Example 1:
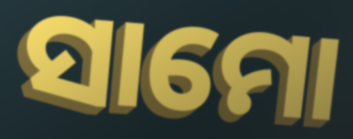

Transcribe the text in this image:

ସାମୋ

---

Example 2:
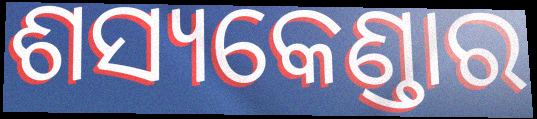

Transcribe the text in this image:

ଶସ୍ୟକେଣ୍ଡାର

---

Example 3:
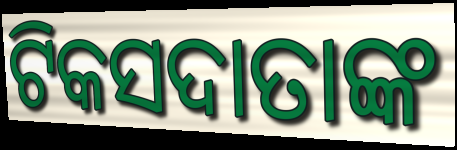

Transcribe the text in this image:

ଟିକସଦାତାଙ୍କ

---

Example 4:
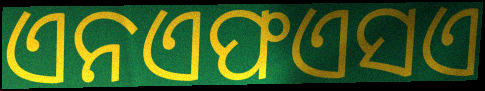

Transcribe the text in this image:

ଏନଏଫଏସଏ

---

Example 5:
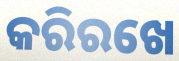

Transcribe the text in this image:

କରିରଖେ